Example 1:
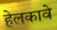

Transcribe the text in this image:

हेलकावे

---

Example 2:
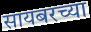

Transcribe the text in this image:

सायबरच्या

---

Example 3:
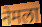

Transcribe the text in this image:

नेमला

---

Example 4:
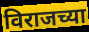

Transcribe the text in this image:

विराजच्या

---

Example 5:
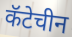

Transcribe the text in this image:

कॅटेचीन